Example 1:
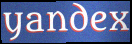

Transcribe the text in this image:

yandex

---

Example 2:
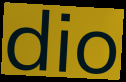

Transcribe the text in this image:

dio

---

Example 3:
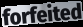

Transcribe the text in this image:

forfeited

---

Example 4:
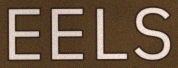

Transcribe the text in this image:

EELS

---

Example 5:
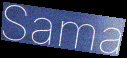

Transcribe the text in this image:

Sama